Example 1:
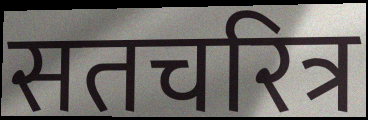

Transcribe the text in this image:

सतचरित्र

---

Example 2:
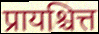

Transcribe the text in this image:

प्रायश्चित्त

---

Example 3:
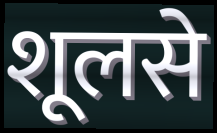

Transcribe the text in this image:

शूलसे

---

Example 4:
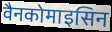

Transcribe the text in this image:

वैनकोमाइसिन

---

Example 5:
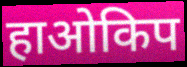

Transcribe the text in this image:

हाओकिप